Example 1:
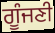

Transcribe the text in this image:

ਗੂੰਜਣੀ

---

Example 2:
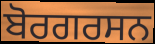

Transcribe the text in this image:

ਬੋਰਗਰਸਨ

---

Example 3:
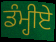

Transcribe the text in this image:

ਡੰਮ੍ਹੀਏ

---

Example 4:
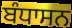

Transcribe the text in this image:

ਬੰਧਾਸਨ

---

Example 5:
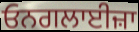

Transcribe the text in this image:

ਓਨਗਲਾਈਜ਼ਾ